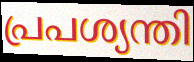
പ്രപശ്യന്തി